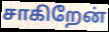
சாகிறேன்